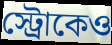
স্ট্রোকেও